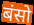
बंसो